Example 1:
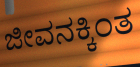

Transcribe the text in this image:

ಜೀವನಕ್ಕಿಂತ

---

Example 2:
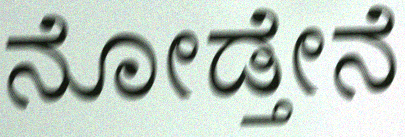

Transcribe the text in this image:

ನೋಡ್ತೇನೆ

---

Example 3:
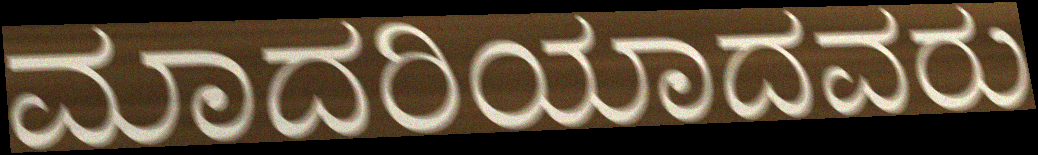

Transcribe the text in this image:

ಮಾದರಿಯಾದವರು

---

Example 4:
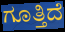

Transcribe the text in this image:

ಗೂತ್ತಿದೆ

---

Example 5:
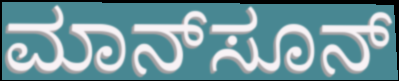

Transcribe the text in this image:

ಮಾನ್‌ಸೂನ್